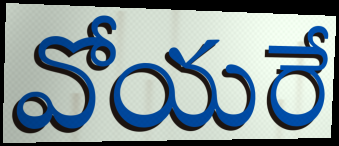
వోయరే